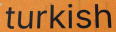
turkish